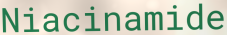
Niacinamide